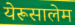
येरूसालेम